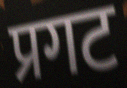
प्रगट